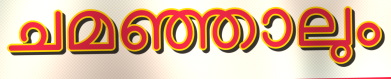
ചമഞ്ഞാലും